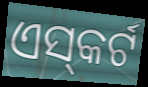
ଏସ୍‌କର୍ଟ